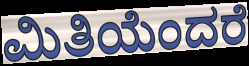
ಮಿತಿಯೆಂದರೆ